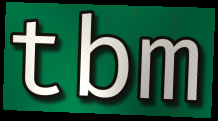
tbm